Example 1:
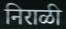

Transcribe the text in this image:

निराळी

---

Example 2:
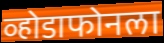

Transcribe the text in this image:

व्होडाफोनला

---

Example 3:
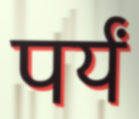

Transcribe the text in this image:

पर्यं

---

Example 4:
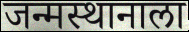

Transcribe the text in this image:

जन्मस्थानाला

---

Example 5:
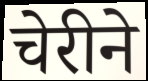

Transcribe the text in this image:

चेरीने